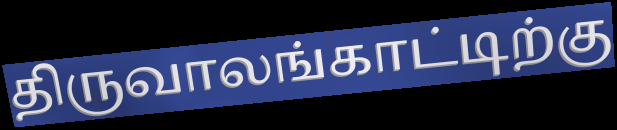
திருவாலங்காட்டிற்கு